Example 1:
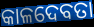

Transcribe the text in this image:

କାଳଦେବତା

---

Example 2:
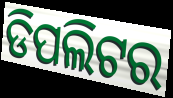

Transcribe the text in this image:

ଡିପଲିଟର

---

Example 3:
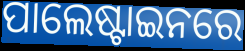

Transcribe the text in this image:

ପାଲେଷ୍ଟାଇନରେ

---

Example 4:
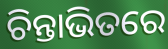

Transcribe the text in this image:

ଚିନ୍ତାଭିତରେ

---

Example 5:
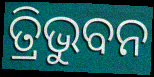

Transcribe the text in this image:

ତ୍ରିଭୁବନ